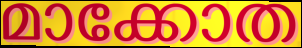
മാക്കോത